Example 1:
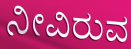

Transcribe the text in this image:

ನೀವಿರುವ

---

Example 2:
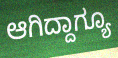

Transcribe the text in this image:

ಆಗಿದ್ದಾಗ್ಯೂ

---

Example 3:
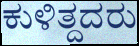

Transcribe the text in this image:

ಕುಳಿತ್ದದರು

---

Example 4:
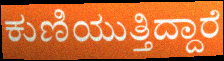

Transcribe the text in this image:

ಕುಣಿಯುತ್ತಿದ್ದಾರೆ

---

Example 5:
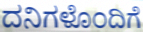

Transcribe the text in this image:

ದನಿಗಳೊಂದಿಗೆ